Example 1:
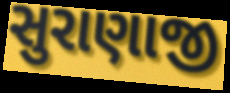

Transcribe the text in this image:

સુરાણાજી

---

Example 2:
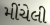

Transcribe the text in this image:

મીંચેલી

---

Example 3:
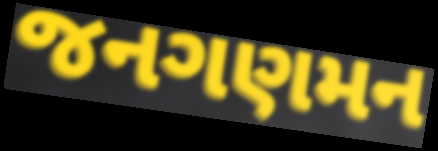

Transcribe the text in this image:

જનગણમન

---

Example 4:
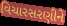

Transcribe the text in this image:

વિચારસરણીને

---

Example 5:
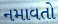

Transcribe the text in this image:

નમાવતો